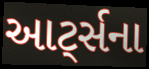
આર્ટ્સના